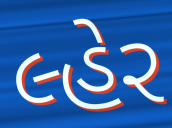
લ્હેર